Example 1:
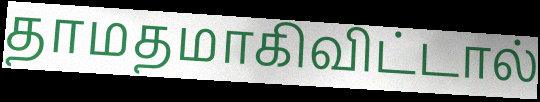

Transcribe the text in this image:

தாமதமாகிவிட்டால்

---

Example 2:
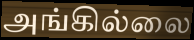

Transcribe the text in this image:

அங்கில்லை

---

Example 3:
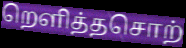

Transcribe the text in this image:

றெளித்தசொற்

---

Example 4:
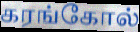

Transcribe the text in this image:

கரங்கோல்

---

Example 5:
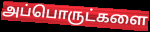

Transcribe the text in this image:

அப்பொருட்களை